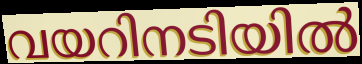
വയറിനടിയിൽ